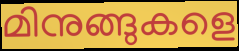
മിനുങ്ങുകളെ